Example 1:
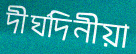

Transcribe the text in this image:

দীৰ্ঘদিনীয়া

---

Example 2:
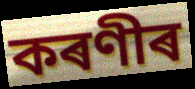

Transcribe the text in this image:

কৰণীৰ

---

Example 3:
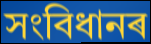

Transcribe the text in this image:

সংবিধানৰ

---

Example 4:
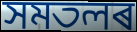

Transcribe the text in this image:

সমতলৰ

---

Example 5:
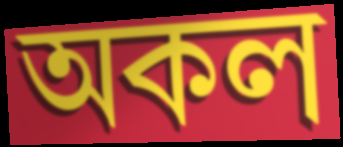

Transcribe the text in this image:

অকল